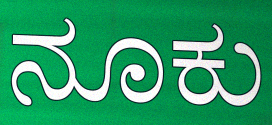
ನೂಕು